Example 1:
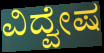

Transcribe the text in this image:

ವಿದ್ವೇಷ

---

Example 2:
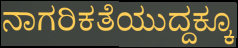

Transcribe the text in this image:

ನಾಗರಿಕತೆಯುದ್ದಕ್ಕೂ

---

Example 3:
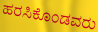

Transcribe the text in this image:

ಹರಸಿಕೊಂಡವರು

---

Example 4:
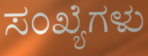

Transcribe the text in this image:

ಸಂಖ್ಯೆಗಳು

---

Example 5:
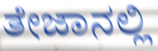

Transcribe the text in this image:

ತೇಜಾನಲ್ಲಿ